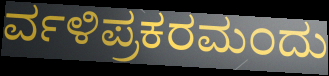
ರ್ವಳಿಪ್ರಕರಮಂದು